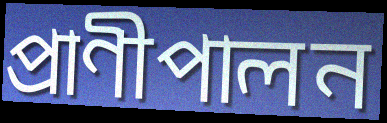
প্রাণীপালন